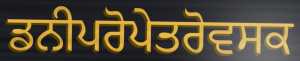
ਡਨੀਪਰੋਪੇਤਰੋਵਸਕ